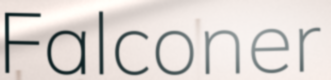
Falconer